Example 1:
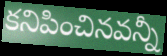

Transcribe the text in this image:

కనిపించినవన్నీ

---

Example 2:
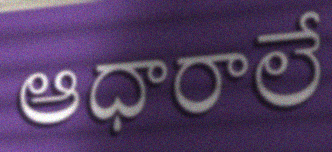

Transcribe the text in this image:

ఆధారాలే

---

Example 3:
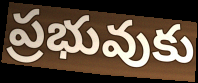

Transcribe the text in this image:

ప్రభువుకు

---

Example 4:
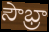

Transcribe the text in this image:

సౌభ్రా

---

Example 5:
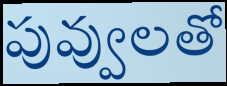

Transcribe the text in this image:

పువ్వులతో